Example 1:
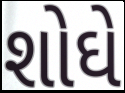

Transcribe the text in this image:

શોઘે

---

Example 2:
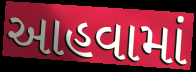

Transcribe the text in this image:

આહવામાં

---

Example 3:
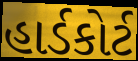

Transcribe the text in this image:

હાર્ડકોર્ટ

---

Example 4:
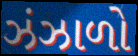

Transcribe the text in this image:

ઝંઝાળો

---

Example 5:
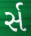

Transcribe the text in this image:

ર્સ